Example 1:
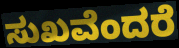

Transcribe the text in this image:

ಸುಖವೆಂದರೆ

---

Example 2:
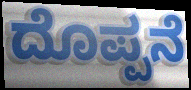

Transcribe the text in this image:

ದೊಪ್ಪನೆ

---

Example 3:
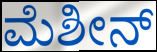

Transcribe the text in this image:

ಮೆಶೀನ್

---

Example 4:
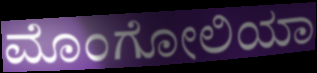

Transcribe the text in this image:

ಮೊಂಗೋಲಿಯಾ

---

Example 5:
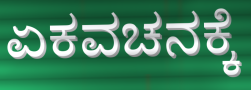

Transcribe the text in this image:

ಏಕವಚನಕ್ಕೆ